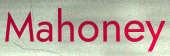
Mahoney